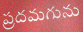
ప్రదమగును